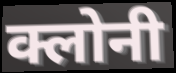
क्लोनी